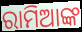
ରାମିଆଙ୍କ